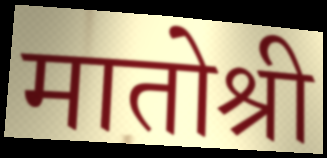
मातोश्री